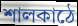
শালকাঠে